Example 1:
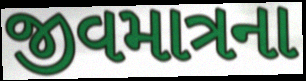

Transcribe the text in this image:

જીવમાત્રના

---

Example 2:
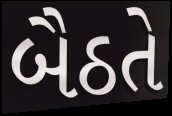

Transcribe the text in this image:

બૈઠતે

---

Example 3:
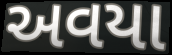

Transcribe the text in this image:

અવયા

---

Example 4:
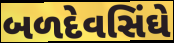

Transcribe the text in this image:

બળદેવસિંઘે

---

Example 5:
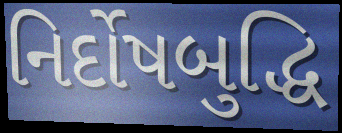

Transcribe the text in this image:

નિર્દોષબુદ્ધિ